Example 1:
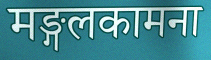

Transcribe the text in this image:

मङ्गलकामना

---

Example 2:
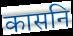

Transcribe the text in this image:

कासनि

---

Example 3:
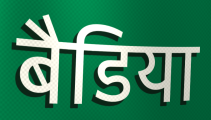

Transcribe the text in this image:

बैडिया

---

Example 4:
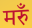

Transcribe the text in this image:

मरुँ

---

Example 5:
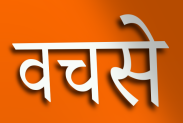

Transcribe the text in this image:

वचसे